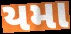
યમા